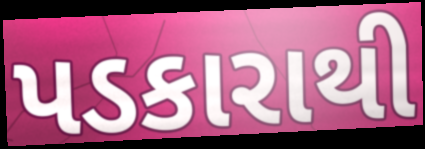
પડકારાથી